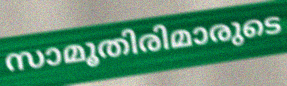
സാമൂതിരിമാരുടെ